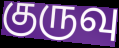
குருவு